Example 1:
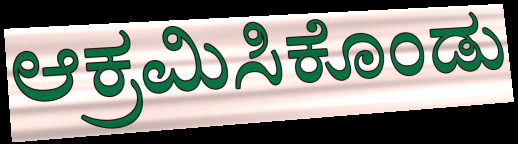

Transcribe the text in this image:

ಆಕ್ರಮಿಸಿಕೊಂಡು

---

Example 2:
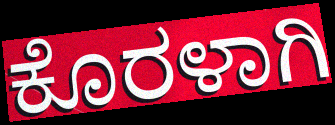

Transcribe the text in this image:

ಕೊರಳಾಗಿ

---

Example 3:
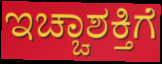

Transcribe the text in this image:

ಇಚ್ಚಾಶಕ್ತಿಗೆ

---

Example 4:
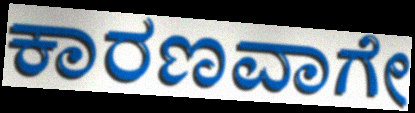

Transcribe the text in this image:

ಕಾರಣವಾಗೇ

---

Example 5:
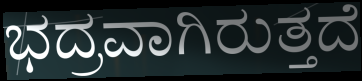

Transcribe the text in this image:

ಭದ್ರವಾಗಿರುತ್ತದೆ